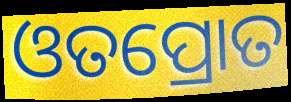
ଓତପ୍ରୋତ